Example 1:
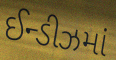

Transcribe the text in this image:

ઈન્ડીઝમાં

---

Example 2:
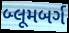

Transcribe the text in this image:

બ્લૂમબર્ગ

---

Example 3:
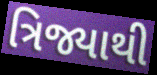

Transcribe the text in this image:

ત્રિજ્યાથી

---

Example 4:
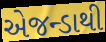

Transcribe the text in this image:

એજન્ડાથી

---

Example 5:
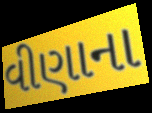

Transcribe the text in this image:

વીણાના